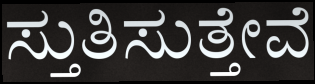
ಸ್ತುತಿಸುತ್ತೇವೆ